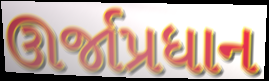
ઊર્જાપ્રધાન